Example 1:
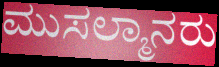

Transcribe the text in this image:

ಮುಸಲ್ಮಾನರು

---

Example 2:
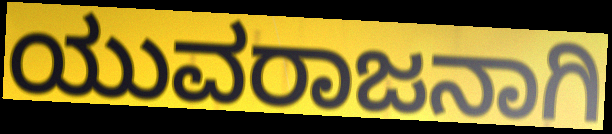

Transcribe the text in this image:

ಯುವರಾಜನಾಗಿ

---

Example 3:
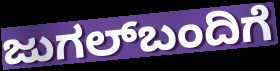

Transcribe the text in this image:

ಜುಗಲ್‌ಬಂದಿಗೆ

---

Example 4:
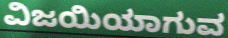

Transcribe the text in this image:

ವಿಜಯಿಯಾಗುವ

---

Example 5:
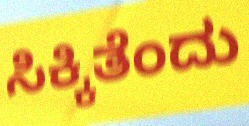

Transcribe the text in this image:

ಸಿಕ್ಕಿತೆಂದು